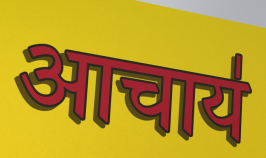
आचाय॑